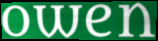
owen